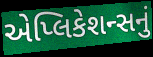
એપ્લિકેશન્સનું